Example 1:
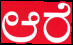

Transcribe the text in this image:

ಆರೆ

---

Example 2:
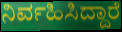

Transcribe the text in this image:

ನಿರ್ವಹಿಸಿದ್ದಾರೆ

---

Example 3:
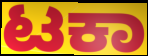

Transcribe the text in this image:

ಟಕಾ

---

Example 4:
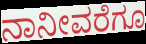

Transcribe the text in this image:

ನಾನೀವರೆಗೂ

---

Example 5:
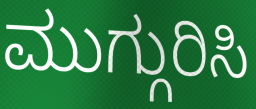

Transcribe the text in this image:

ಮುಗ್ಗುರಿಸಿ